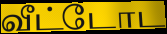
வீட்டோட